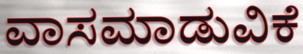
ವಾಸಮಾಡುವಿಕೆ